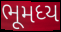
ભૂમધ્ય